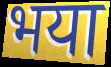
भया